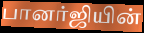
பானர்ஜியின்